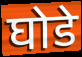
घोडे